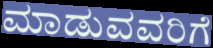
ಮಾಡುವವರಿಗೆ